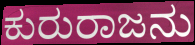
ಕುರುರಾಜನು